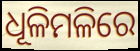
ଧୂଳିମଳିରେ